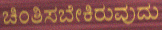
ಚಿಂತಿಸಬೇಕಿರುವುದು